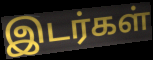
இடர்கள்